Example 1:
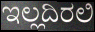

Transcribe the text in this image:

ಇಲ್ಲದಿರಲಿ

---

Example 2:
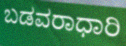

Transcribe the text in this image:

ಬಡವರಾಧಾರಿ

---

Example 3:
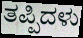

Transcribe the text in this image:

ತಪ್ಪಿದಳು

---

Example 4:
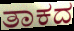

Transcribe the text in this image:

ತಾಕದ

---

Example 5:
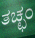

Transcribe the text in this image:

ತಚ್ಛಂ